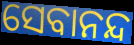
ସେବାନନ୍ଦ